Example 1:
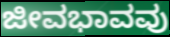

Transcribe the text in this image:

ಜೀವಭಾವವು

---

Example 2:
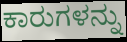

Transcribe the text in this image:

ಕಾರುಗಳನ್ನು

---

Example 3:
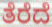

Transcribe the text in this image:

ತೆರೆದೆ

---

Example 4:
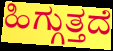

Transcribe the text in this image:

ಹಿಗ್ಗುತ್ತದೆ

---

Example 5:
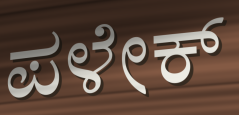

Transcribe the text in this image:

ಪಳೇಕ್